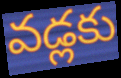
వడ్లకు